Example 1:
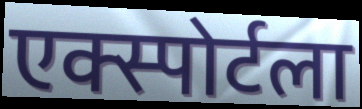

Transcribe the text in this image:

एक्स्पोर्टला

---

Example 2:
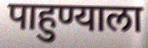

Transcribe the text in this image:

पाहुण्याला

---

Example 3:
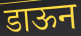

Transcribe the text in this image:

डाऊन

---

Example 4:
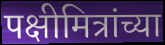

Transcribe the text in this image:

पक्षीमित्रांच्या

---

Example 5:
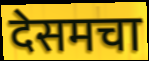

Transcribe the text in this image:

देसमचा